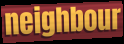
neighbour